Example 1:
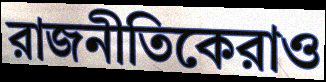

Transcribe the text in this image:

রাজনীতিকেরাও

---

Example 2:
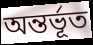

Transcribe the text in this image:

অন্তর্ভূত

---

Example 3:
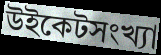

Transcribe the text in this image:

উইকেটসংখ্যা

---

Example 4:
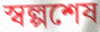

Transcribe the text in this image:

স্বল্পশেষ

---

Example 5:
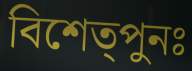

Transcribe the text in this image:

বিশেত্পুনঃ